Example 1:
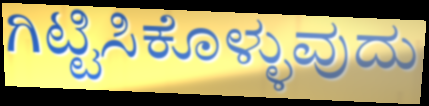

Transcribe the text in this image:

ಗಿಟ್ಟಿಸಿಕೊಳ್ಳುವುದು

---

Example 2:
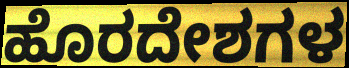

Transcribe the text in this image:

ಹೊರದೇಶಗಳ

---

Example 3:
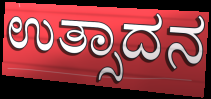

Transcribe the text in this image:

ಉತ್ಸಾದನ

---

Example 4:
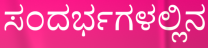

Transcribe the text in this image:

ಸಂದರ್ಭಗಳಲ್ಲಿನ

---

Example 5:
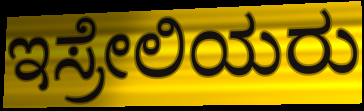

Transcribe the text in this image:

ಇಸ್ರೇಲಿಯರು